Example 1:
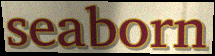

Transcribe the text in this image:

seaborn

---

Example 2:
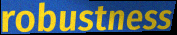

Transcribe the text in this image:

robustness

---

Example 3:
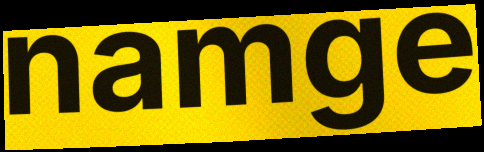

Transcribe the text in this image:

namge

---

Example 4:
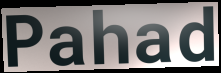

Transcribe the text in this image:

Pahad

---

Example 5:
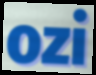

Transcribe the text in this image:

ozi